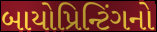
બાયોપ્રિન્ટિંગનો